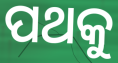
ପଥକୁ